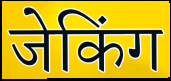
जेकिंग